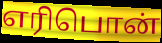
எரிபொன்